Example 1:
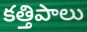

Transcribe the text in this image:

కత్తిపాలు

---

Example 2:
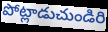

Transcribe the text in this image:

పోట్లాడుచుండిరి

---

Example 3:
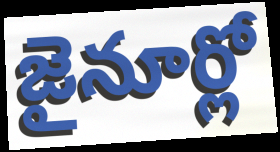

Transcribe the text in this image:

జైనూర్లో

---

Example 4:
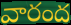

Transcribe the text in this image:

వారంద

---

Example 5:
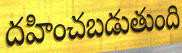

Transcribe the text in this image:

దహించబడుతుంది